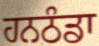
ਹਨਠੰਡਾ